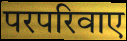
परपरिवाए